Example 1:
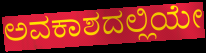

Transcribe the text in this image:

ಅವಕಾಶದಲ್ಲಿಯೇ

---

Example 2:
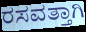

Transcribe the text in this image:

ರಸವತ್ತಾಗಿ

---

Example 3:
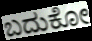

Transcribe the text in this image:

ಬದುಕೋ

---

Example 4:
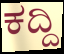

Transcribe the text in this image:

ಕದ್ದಿ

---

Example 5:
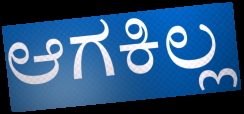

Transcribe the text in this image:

ಆಗಕಿಲ್ಲ